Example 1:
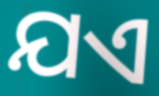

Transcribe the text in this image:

ଯଏ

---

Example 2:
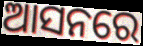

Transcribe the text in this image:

ଆସନରେ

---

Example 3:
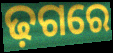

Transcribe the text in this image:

ଢ଼ଗରେ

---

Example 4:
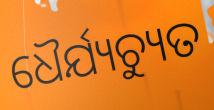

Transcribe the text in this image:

ଧୈର୍ଯ୍ୟଚ୍ୟୁତ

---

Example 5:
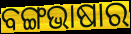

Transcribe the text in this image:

ବଙ୍ଗଭାଷାର